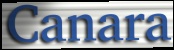
Canara